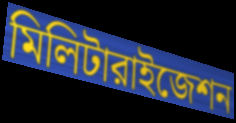
মিলিটারাইজেশন